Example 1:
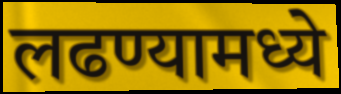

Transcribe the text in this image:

लढण्यामध्ये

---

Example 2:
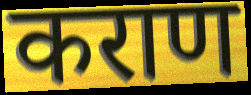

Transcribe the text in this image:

कराण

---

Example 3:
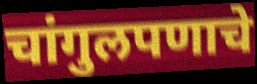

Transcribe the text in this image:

चांगुलपणाचे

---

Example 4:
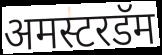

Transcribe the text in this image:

अमस्टरडॅम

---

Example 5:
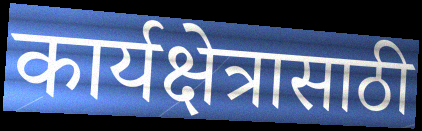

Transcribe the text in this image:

कार्यक्षेत्रासाठी